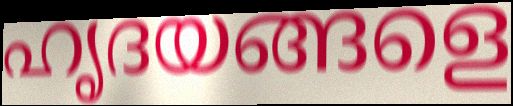
ഹൃദയങ്ങളെ